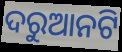
ଦରୁଆନଟି